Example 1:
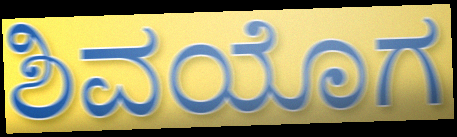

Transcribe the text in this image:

ಶಿವಯೊಗ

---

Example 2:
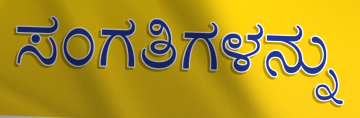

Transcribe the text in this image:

ಸಂಗತಿಗಳನ್ನು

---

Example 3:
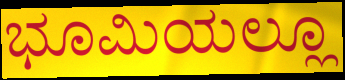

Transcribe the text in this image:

ಭೂಮಿಯಲ್ಲೂ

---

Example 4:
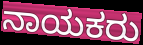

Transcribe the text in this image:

ನಾಯಕರು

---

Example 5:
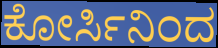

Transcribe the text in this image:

ಕೋರ್ಸಿನಿಂದ